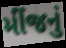
મીંજનું